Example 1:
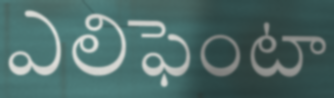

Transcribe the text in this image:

ఎలిఫెంటా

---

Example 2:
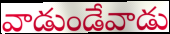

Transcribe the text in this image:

వాడుండేవాడు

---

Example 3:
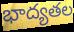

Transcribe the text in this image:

భాద్యతల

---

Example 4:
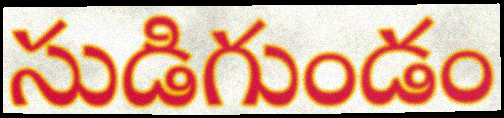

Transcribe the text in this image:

సుడిగుండం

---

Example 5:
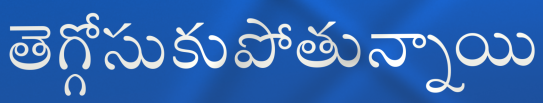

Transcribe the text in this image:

తెగ్గోసుకుపోతున్నాయి